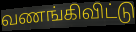
வணங்கிவிட்டு